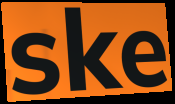
ske